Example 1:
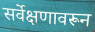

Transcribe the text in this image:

सर्वेक्षणावरून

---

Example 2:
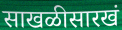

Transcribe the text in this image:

साखळीसारखं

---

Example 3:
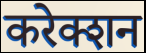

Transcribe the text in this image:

करेक्शन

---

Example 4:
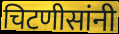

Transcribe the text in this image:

चिटणीसांनी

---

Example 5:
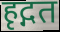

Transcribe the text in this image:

हृद्गत